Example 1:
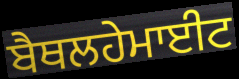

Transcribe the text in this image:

ਬੈਥਲਹੇਮਾਈਟ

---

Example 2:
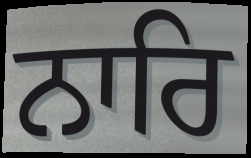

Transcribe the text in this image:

ਨਾਰਿ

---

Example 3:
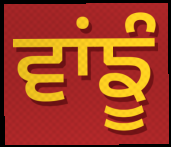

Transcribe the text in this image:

ਵਾਂਙੂੰ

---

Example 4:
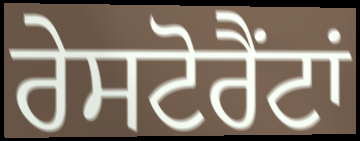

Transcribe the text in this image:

ਰੇਸਟੋਰੈਂਟਾਂ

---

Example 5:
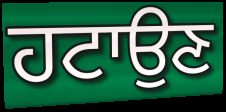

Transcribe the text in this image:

ਹਟਾਉਣ